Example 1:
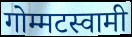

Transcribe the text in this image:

गोम्मटस्वामी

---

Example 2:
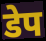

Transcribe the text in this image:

डेप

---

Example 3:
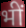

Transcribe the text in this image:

भीं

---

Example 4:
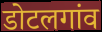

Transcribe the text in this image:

डोटलगांव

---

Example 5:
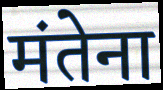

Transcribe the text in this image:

मंतेना